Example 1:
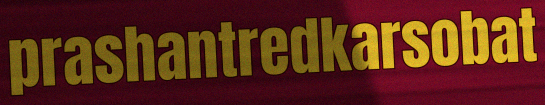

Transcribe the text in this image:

prashantredkarsobat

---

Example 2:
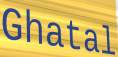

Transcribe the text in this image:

Ghatal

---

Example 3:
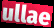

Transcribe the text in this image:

ullae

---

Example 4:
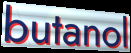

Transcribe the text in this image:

butanol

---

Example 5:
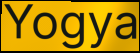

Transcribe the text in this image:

Yogya